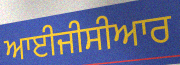
ਆਈਜੀਸੀਆਰ